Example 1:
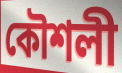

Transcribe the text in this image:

কৌশলী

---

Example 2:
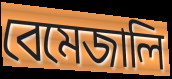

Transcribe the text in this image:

বেমেজালি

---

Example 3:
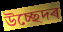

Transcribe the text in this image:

উচ্ছেদৰ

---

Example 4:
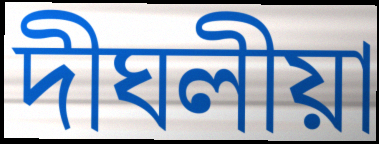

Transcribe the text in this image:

দীঘলীয়া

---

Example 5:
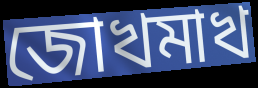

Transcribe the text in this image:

জোখমাখ